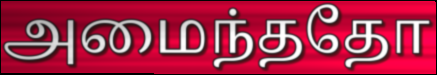
அமைந்ததோ